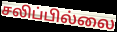
சலிப்பில்லை